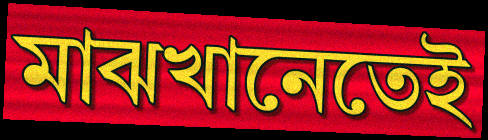
মাঝখানেতেই